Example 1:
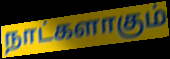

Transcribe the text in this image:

நாட்களாகும்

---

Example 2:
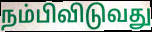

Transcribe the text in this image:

நம்பிவிடுவது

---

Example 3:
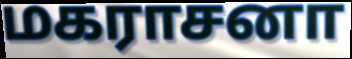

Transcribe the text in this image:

மகராசனா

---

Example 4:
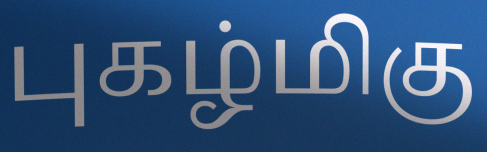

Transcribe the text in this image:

புகழ்மிகு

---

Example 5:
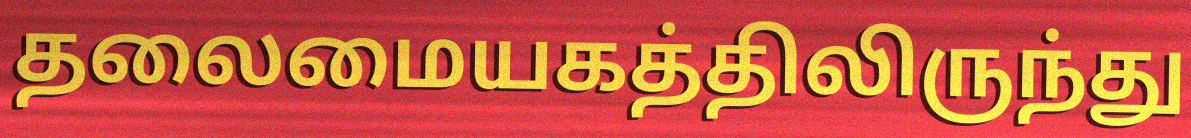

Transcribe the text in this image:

தலைமையகத்திலிருந்து